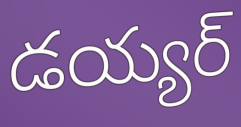
డయ్యర్